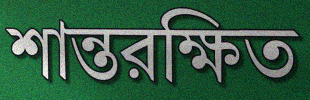
শান্তরক্ষিত